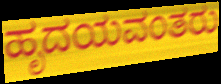
ಹೃದಯವಂತರು